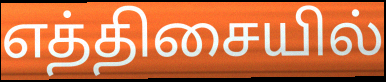
எத்திசையில்